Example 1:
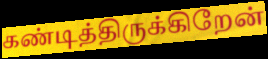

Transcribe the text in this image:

கண்டித்திருக்கிறேன்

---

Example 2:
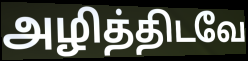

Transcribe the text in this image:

அழித்திடவே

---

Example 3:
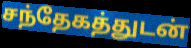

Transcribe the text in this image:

சந்தேகத்துடன்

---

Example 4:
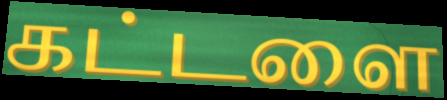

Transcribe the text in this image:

கட்டளை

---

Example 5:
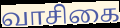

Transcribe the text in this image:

வாசிகை